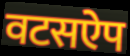
वटसऐप